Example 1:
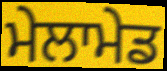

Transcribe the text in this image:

ਮੇਲਾਮੇਡ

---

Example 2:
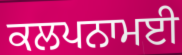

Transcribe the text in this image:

ਕਲਪਨਾਮਈ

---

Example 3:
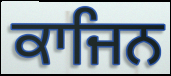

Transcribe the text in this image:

ਕਾਜਿਨ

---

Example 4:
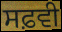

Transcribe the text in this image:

ਸਫ਼ਵੀ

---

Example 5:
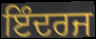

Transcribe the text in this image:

ਇੰਦਰਜ